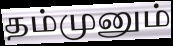
தம்முனும்